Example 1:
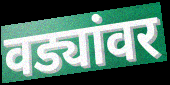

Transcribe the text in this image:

वड्यांवर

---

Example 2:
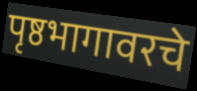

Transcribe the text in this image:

पृष्ठभागावरचे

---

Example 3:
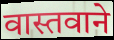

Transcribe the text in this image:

वास्तवाने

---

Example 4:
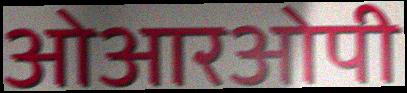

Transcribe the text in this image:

ओआरओपी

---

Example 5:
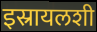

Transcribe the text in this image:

इस्रायलशी